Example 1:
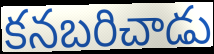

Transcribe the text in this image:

కనబరిచాడు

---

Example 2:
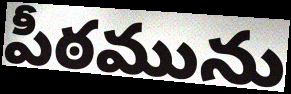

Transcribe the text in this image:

పీఠమును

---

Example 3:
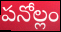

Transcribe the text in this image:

పనోల్లం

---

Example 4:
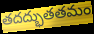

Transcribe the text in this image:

తదద్భుతతమం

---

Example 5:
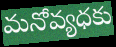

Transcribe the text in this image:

మనోవ్యధకు